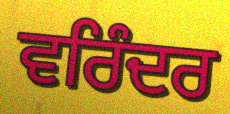
ਵਰਿੰਦਰ